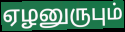
ஏழனுருபும்